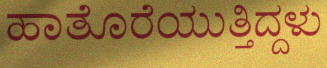
ಹಾತೊರೆಯುತ್ತಿದ್ದಳು